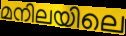
മനിലയിലെ